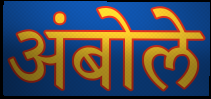
अंबोले